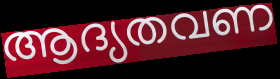
ആദ്യതവണ